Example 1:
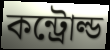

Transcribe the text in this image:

কন্ট্রোল্ড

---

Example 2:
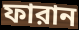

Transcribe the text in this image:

ফারান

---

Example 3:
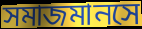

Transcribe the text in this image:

সমাজমানসে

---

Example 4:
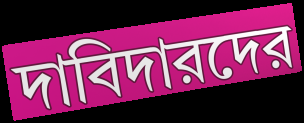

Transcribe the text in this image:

দাবিদারদের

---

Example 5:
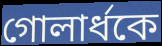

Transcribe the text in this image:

গোলার্ধকে